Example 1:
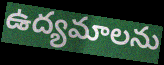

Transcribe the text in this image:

ఉద్యమాలను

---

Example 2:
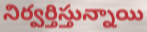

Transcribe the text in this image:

నిర్వర్తిస్తున్నాయి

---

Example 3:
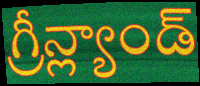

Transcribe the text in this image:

గ్రీన్ల్యాండ్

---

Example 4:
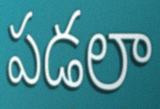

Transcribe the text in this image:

పడలా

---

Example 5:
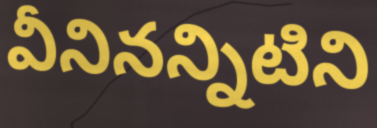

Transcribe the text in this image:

వీనినన్నిటిని